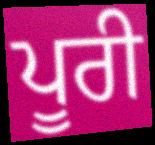
ਪੂਰੀ